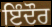
ਇੰਦੌਰ